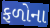
ફળોના